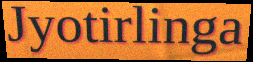
Jyotirlinga